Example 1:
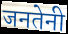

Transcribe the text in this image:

जनतेनी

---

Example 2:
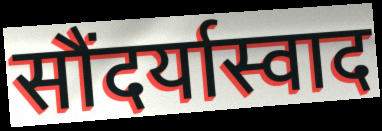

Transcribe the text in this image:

सौंदर्यास्वाद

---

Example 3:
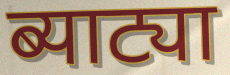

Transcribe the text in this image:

ब्याट्या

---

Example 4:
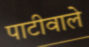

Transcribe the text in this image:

पाटीवाले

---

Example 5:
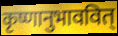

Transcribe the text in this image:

कृष्णानुभाववित्